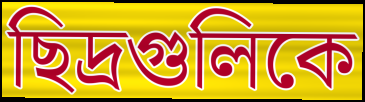
ছিদ্রগুলিকে